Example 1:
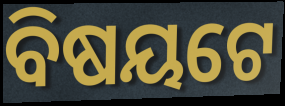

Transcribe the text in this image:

ବିଷୟଟେ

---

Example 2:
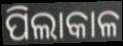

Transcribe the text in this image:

ପିଲାକାଳ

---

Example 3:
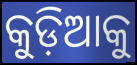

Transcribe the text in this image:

କୁଡ଼ିଆକୁ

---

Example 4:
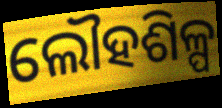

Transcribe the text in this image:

ଲୌହଶିଳ୍ପ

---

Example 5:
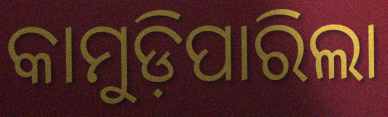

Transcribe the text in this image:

କାମୁଡ଼ିପାରିଲା